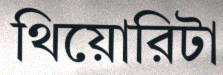
থিয়োরিটা